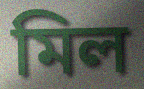
মিল